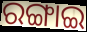
ରଙ୍ଗାଇ